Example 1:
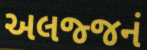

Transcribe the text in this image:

અલજ્જનં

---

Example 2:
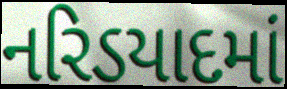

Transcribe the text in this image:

નરિડયાદમાં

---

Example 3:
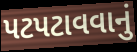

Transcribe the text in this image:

પટપટાવવાનું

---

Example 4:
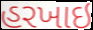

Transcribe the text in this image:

હરખાઇ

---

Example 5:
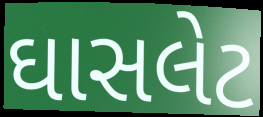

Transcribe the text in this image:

ઘાસલેટ